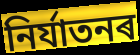
নিৰ্যাতনৰ